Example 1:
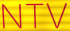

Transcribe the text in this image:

NTV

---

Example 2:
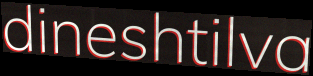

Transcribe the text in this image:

dineshtilva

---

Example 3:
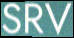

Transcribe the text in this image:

SRV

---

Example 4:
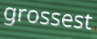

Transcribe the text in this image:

grossest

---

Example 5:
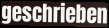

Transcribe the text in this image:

geschrieben